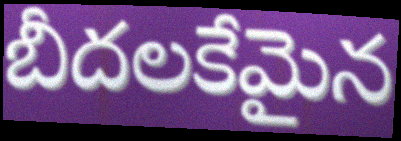
బీదలకేమైన